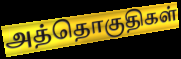
அத்தொகுதிகள்